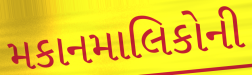
મકાનમાલિકોની